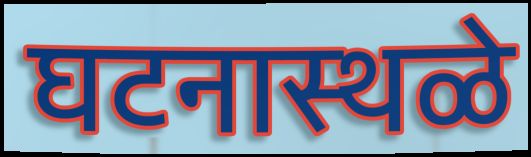
घटनास्थळे